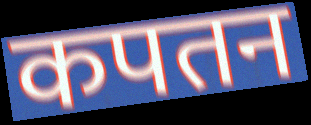
कपतन